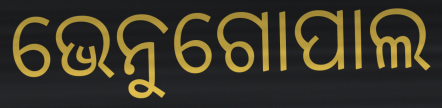
ଭେନୁଗୋପାଲ